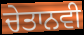
ਚੇਤਾਨਵੀ